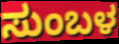
ಸುಂಬಳ